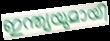
ഇന്ത്യയുമായി